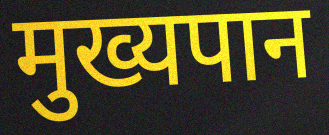
मुख्यपान